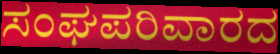
ಸಂಘಪರಿವಾರದ